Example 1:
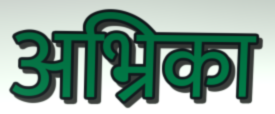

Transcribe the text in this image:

अभ्रिका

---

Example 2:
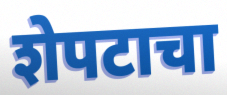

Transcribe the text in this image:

शेपटाचा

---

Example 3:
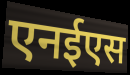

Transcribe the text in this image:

एनईएस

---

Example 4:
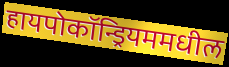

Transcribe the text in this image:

हायपोकॉन्ड्रियममधील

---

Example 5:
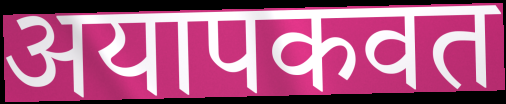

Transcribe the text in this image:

अयापकवत